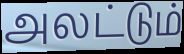
அலட்டும்